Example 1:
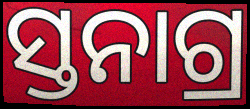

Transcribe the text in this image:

ସ୍ତନାଗ୍ର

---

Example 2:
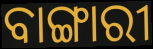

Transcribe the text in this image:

ବାଙ୍ଗାରୀ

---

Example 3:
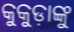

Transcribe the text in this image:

କୁକୁଡ଼ାଙ୍କୁ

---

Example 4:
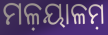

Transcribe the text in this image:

ମଳ଼ୟାଳମ଼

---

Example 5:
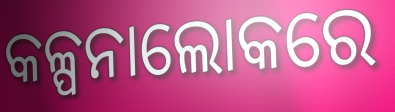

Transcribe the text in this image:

କଳ୍ପନାଲୋକରେ